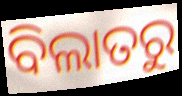
ବିଲାତରୁ